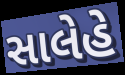
સાલેહે